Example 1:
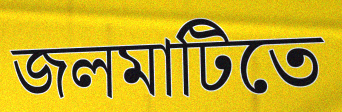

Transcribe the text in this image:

জলমাটিতে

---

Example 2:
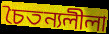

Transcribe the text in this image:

চৈতন্যলীলা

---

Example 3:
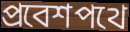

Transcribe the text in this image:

প্রবেশপথে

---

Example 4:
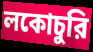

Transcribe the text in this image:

লকোচুরি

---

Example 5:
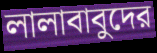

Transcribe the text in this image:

লালাবাবুদের